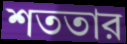
শততার